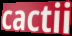
cactii